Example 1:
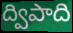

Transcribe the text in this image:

ద్విపాది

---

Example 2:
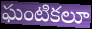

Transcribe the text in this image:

ఘంటికలూ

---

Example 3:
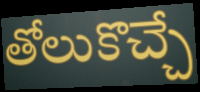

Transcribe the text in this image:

తోలుకొచ్చే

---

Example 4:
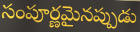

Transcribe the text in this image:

సంపూర్ణమైనప్పుడు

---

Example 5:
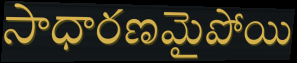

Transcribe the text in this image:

సాధారణమైపోయి